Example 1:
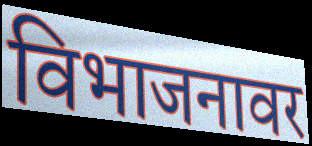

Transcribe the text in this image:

विभाजनावर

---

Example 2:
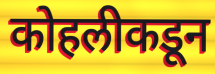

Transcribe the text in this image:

कोहलीकडून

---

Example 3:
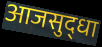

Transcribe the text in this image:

आजसुद्धा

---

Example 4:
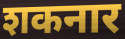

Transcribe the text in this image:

शकनार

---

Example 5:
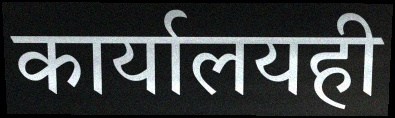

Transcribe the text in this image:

कार्यालयही